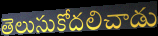
తెలుసుకోదలిచాడు